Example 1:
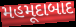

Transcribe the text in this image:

મહમૂદાબાદ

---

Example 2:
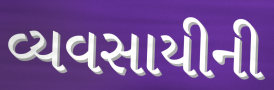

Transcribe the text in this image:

વ્યવસાયીની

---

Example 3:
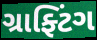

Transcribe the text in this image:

ગ્રાફ્ટિંગ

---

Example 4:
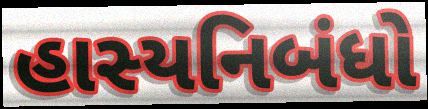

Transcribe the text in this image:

હાસ્યનિબંધો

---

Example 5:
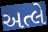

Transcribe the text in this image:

અત્લે